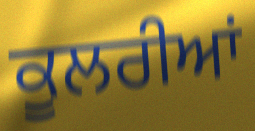
ਕੂਲਰੀਆਂ